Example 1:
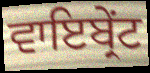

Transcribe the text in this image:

ਵਾਇਬ੍ਰੇਂਟ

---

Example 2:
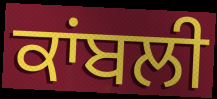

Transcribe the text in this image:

ਕਾਂਬਲੀ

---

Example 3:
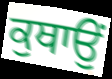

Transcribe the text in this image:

ਕੁਥਾਉਂ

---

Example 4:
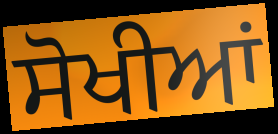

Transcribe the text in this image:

ਸੋਖੀਆਂ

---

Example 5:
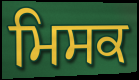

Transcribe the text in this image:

ਮਿਸਕ